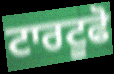
ਟਾਰਟੂਫੋ